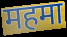
महमा